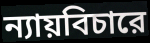
ন্যায়বিচারে